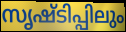
സൃഷ്ടിപ്പിലും